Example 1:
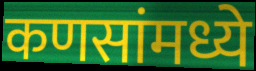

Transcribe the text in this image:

कणसांमध्ये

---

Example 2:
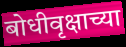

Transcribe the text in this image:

बोधीवृक्षाच्या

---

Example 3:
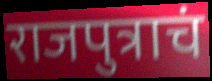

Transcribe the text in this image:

राजपुत्राचं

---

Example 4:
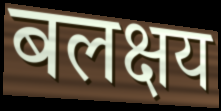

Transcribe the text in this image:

बलक्षय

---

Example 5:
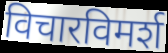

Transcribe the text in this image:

विचारविमर्श